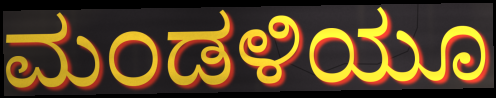
ಮಂಡಳಿಯೂ